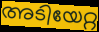
അടിയേറ്റ